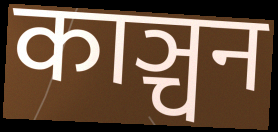
काञ्चन